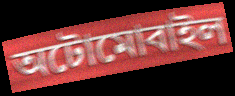
অটোমোবাইল